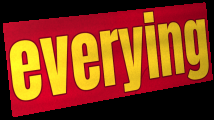
everying